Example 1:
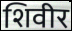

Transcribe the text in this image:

शिवीर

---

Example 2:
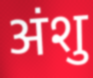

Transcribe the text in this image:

अंशु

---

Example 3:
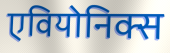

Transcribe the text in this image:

एवियोनिक्स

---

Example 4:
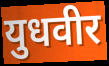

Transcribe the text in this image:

युधवीर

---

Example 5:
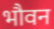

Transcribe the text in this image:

भौवन